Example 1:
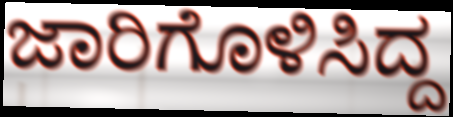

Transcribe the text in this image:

ಜಾರಿಗೊಳಿಸಿದ್ದ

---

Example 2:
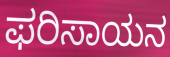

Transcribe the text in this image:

ಫರಿಸಾಯನ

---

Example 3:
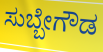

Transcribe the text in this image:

ಸುಬ್ಬೇಗೌಡ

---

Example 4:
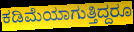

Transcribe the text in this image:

ಕಡಿಮೆಯಾಗುತ್ತಿದ್ದರೂ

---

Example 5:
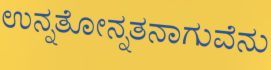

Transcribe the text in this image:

ಉನ್ನತೋನ್ನತನಾಗುವೆನು